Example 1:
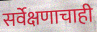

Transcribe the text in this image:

सर्वेक्षणाचाही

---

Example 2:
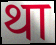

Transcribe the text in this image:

था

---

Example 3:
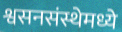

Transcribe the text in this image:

श्वसनसंस्थेमध्ये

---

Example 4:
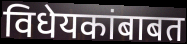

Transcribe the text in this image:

विधेयकांबाबत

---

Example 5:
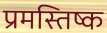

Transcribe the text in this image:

प्रमस्तिष्क